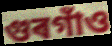
গুৰগাঁও